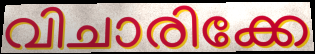
വിചാരിക്കേ